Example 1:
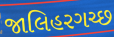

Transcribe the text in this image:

જાલિહરગચ્છ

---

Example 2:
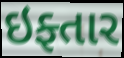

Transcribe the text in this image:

ઇફ્તાર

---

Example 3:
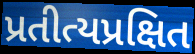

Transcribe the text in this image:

પ્રતીત્યપ્રક્ષિત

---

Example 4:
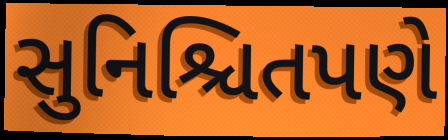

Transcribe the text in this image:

સુનિશ્ચિતપણે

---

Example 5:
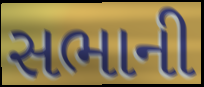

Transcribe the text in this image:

સભાની